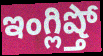
ఇంగ్లిష్తో